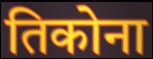
तिकोना